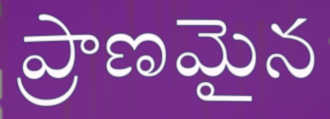
ప్రాణమైన